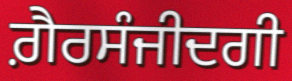
ਗ਼ੈਰਸੰਜੀਦਗੀ